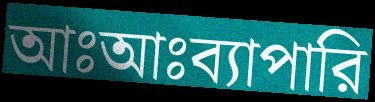
আঃআঃব্যাপারি